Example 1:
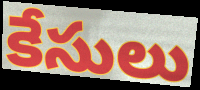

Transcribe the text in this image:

కేసులు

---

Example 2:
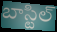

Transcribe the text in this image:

బాస్టిల్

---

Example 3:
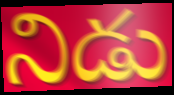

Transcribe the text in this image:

నిడు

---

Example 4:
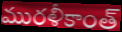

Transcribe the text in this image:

మురళీకాంత్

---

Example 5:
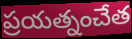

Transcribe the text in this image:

ప్రయత్నంచేత